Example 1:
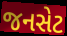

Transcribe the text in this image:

જનસેટ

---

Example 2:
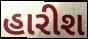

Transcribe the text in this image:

હારીશ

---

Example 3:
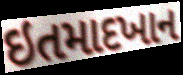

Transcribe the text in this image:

ઇતમાદખાન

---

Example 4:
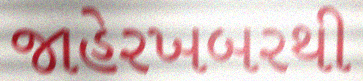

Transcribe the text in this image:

જાહેરખબરથી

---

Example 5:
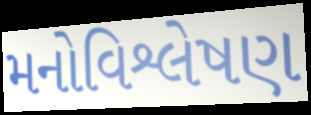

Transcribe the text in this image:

મનોવિશ્લેષણ